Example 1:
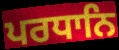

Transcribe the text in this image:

ਪਰਧਾਨਿ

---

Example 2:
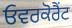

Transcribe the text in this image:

ਓਵਰਕੋਰੈਂਟ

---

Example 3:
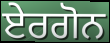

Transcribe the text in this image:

ਏਰਗੋਨ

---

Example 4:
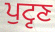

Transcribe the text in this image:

ਪੁਟ੍ਟਣ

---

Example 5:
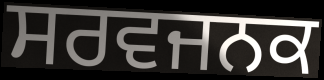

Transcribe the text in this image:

ਸਰਵਜਨਕ